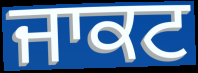
ਜਾਕਟ